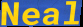
Neal